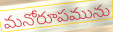
మనోరూపమును